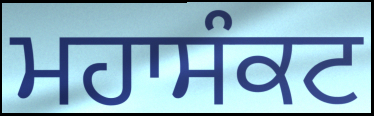
ਮਹਾਸੰਕਟ